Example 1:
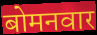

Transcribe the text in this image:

बोमनवार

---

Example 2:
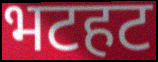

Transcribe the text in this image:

भटहट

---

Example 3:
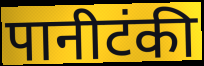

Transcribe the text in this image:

पानीटंकी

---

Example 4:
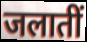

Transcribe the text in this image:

जलातीं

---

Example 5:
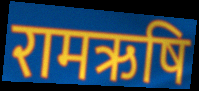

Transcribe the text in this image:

रामऋषि